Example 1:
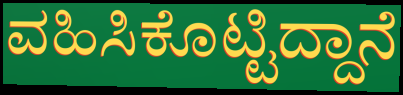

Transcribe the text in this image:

ವಹಿಸಿಕೊಟ್ಟಿದ್ದಾನೆ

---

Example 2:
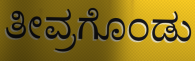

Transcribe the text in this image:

ತೀವ್ರಗೊಂಡು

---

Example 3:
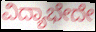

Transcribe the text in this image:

ವಿದ್ಯಾಭೇದೇ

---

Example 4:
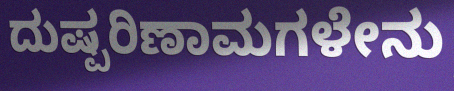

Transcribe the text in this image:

ದುಷ್ಪರಿಣಾಮಗಳೇನು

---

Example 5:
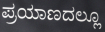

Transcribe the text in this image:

ಪ್ರಯಾಣದಲ್ಲೂ